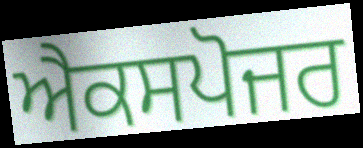
ਐਕਸਪੋਜਰ